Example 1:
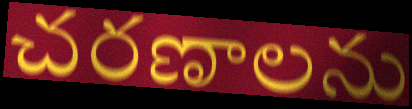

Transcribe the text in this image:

చరణాలను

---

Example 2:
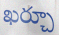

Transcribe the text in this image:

ఖర్చూ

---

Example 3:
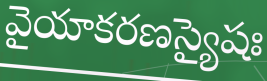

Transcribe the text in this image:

వైయాకరణస్యైషః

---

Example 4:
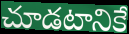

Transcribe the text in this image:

చూడటానికే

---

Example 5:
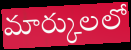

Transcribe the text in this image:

మార్కులలో